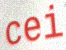
cei